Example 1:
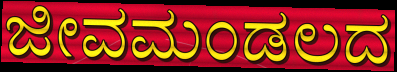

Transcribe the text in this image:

ಜೀವಮಂಡಲದ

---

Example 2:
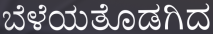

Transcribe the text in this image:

ಬೆಳೆಯತೊಡಗಿದ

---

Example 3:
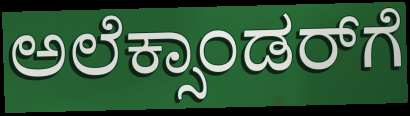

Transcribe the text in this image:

ಅಲೆಕ್ಸಾಂಡರ್‌ಗೆ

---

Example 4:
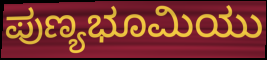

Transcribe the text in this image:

ಪುಣ್ಯಭೂಮಿಯು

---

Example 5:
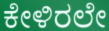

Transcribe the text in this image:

ಕೇಳಿರಲೇ